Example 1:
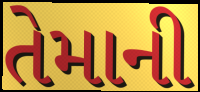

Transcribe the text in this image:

તેમાની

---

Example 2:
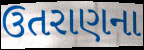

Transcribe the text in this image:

ઉતરાણના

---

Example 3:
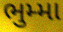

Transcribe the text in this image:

ભુમ્મા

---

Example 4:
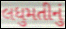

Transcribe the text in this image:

લધુમતીનું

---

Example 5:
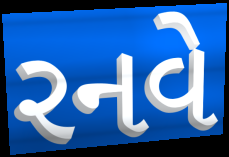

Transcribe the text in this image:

રનવે